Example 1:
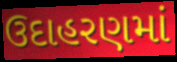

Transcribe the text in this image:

ઉદાહરણમાં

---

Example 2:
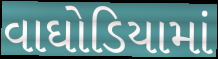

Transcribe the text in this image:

વાઘોડિયામાં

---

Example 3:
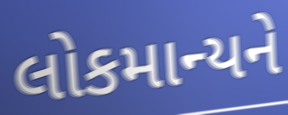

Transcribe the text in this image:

લોકમાન્યને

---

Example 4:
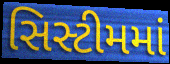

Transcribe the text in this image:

સિસ્ટીમમાં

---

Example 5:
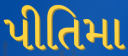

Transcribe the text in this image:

પીતિમા